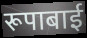
रूपाबाई